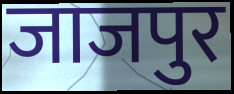
जाजपुर